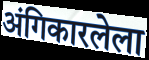
अंगिकारलेला